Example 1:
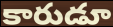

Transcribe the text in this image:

కారుడూ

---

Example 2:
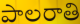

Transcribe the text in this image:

పాలరాతి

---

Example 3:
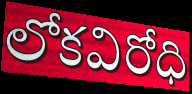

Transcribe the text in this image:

లోకవిరోధి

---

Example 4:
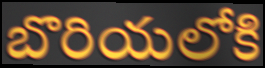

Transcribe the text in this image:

బొరియలోకి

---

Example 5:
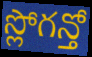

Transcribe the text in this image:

స్లోగన్తో